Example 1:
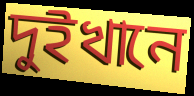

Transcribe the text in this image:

দুইখানে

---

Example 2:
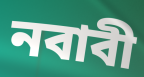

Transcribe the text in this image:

নবাবী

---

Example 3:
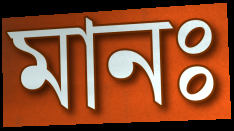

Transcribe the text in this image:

মানঃ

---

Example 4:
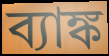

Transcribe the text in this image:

ব্যাঙ্ক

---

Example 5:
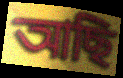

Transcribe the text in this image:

আছি